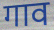
गाव